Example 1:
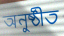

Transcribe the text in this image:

অনুষ্ঠীত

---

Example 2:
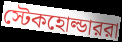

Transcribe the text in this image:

স্টেকহোল্ডাররা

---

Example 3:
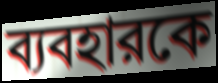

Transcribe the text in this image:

ব্যবহারকে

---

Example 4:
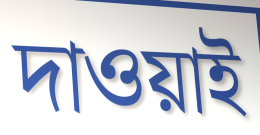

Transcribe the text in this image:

দাওয়াই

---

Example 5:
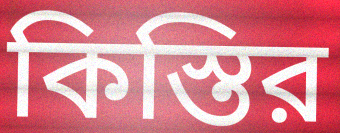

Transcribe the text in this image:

কিস্তির